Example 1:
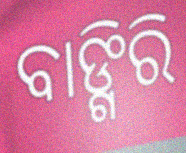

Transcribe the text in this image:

ବାଙ୍ଗିରି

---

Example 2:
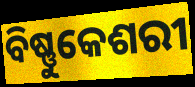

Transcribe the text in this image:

ବିଷ୍ଣୁକେଶରୀ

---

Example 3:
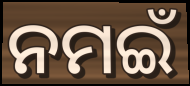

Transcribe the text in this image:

ନମଇଁ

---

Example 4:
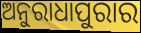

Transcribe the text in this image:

ଅନୁରାଧାପୁରାର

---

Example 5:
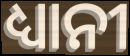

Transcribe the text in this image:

ଧ୍ୟାନୀ